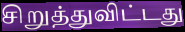
சிறுத்துவிட்டது